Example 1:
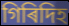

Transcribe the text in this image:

গিৰিদিহ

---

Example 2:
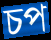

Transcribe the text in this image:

চপ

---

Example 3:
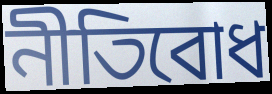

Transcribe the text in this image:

নীতিবোধ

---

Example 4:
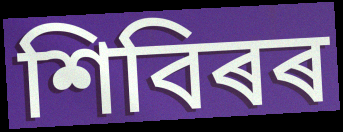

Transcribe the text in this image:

শিবিৰৰ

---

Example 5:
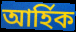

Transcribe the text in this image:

আৰ্হিক